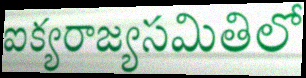
ఐక్యరాజ్యసమితిలో